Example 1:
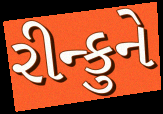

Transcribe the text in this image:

રીન્કુને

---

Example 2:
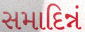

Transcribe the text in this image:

સમાદિન્નં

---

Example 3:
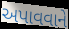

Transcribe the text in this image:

અપાવવાને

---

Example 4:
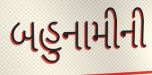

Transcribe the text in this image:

બહુનામીની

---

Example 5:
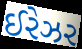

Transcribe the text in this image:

ઈરેઝર